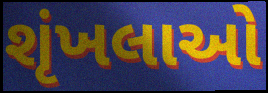
શૃંખલાઓ